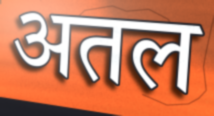
अतल